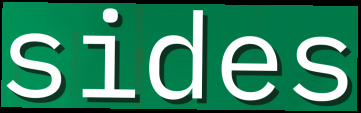
sides